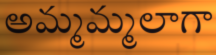
అమ్మమ్మలాగా